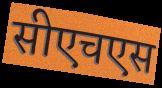
सीएचएस